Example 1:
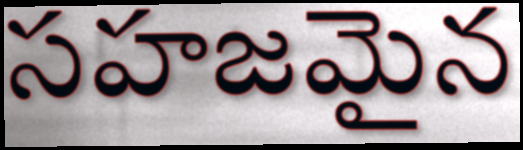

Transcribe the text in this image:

సహజమైన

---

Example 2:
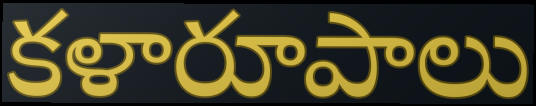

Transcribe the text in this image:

కళారూపాలు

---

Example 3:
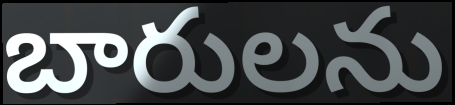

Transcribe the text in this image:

బారులను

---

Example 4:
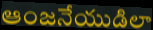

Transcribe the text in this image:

ఆంజనేయుడిలా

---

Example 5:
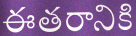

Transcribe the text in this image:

ఈతరానికి